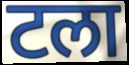
टला